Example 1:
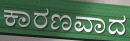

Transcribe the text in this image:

ಕಾರಣವಾದ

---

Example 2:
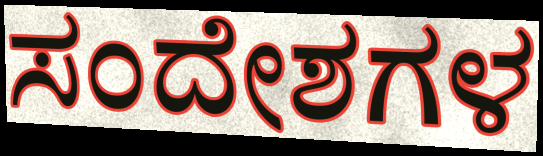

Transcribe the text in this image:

ಸಂದೇಶಗಳ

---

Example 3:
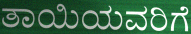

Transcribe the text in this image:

ತಾಯಿಯವರಿಗೆ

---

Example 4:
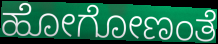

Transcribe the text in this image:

ಹೋಗೋಣಂತೆ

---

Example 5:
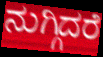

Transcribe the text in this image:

ನುಗ್ಗಿದರೆ